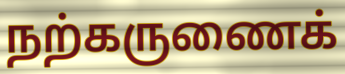
நற்கருணைக்